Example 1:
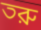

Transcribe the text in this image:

তৰু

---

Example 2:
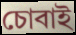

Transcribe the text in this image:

চোবাই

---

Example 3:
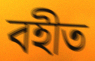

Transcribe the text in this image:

বহীত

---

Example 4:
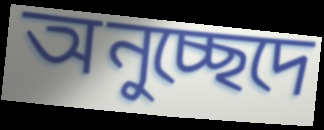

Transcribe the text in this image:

অনুচ্ছেদে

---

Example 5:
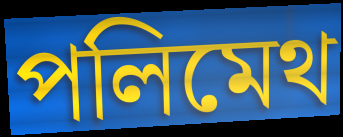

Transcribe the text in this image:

পলিমেথ